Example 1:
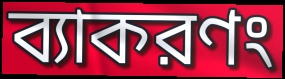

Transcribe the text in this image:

ব্যাকরণং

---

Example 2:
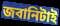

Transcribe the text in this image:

জবানিটাই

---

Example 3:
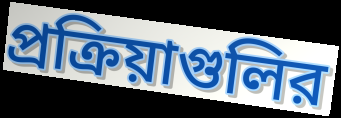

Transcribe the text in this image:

প্রক্রিয়াগুলির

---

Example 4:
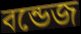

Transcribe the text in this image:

বন্ডেজ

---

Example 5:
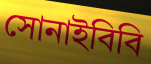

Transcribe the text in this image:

সোনাইবিবি